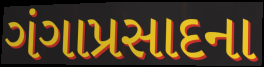
ગંગાપ્રસાદના